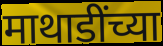
माथाडींच्या